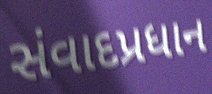
સંવાદપ્રધાન